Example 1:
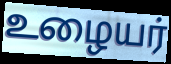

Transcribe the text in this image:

உழையர்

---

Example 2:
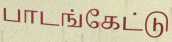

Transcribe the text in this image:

பாடங்கேட்டு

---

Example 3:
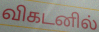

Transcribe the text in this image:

விகடனில்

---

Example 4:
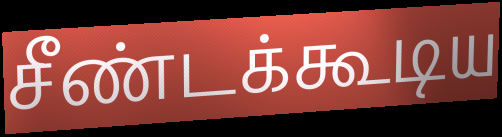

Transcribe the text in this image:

சீண்டக்கூடிய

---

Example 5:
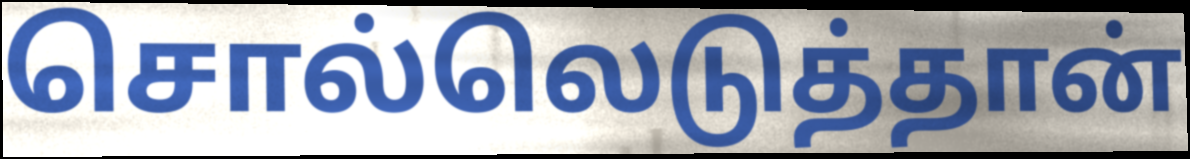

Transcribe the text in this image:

சொல்லெடுத்தான்